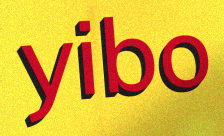
yibo